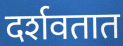
दर्शवतात